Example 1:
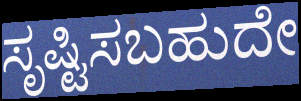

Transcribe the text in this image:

ಸೃಷ್ಟಿಸಬಹುದೇ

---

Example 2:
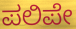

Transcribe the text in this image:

ಪಲಿಪೇ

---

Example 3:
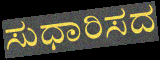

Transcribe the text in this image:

ಸುಧಾರಿಸದ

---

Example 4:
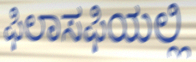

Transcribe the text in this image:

ಫಿಲಾಸಫಿಯಲ್ಲಿ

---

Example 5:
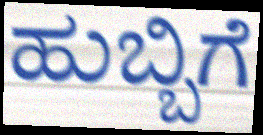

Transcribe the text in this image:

ಹುಬ್ಬಿಗೆ